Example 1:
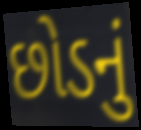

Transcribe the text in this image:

છોડનું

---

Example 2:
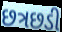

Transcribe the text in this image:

છત્રછડી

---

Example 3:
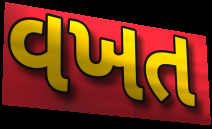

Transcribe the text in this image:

વખત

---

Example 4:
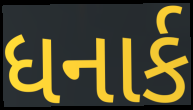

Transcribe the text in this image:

ધનાર્ક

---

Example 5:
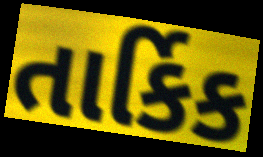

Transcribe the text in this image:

તાર્કિક